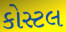
કોસ્ટલ